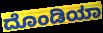
ದೊಂಡಿಯಾ